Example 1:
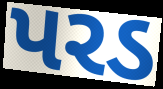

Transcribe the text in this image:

પરડ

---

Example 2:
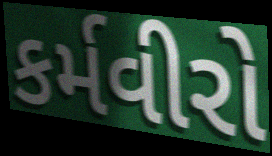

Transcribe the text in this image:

કર્મવીરો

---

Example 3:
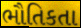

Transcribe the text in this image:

ભૌતિકતા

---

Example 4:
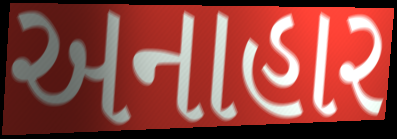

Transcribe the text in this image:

અનાહાર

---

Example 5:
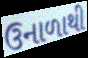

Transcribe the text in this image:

ઉનાળાથી